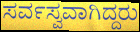
ಸರ್ವಸ್ವವಾಗಿದ್ದರು